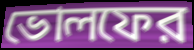
ভোলফের